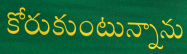
కోరుకుంటున్నాను